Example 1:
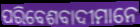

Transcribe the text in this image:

ପରିବେଶବାଦୀମାନେ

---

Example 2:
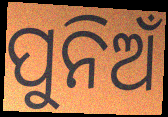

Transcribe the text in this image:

ପୁନିଅଁ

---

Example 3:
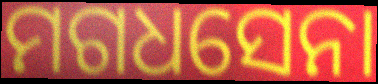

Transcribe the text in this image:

ମଗଧସେନା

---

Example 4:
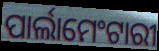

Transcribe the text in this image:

ପାର୍ଲାମେଂଟାରୀ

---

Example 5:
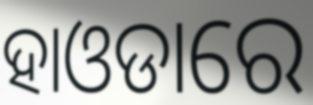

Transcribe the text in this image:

ହାଓଡାରେ